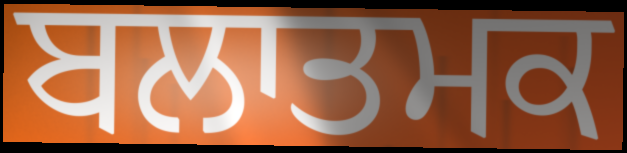
ਬਲਾਤਮਕ